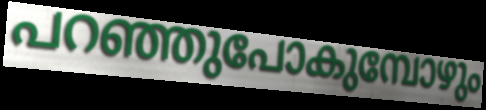
പറഞ്ഞുപോകുമ്പോഴും